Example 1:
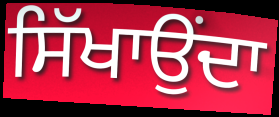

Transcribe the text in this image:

ਸਿੱਖਾਉਂਦਾ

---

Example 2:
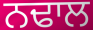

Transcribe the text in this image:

ਨਢਾਲ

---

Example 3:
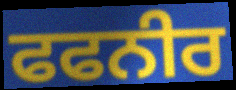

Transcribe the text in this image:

ਫਫਨੀਰ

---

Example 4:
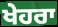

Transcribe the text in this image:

ਖੇਹਰਾ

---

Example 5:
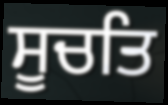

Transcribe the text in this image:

ਸੂਚਤਿ